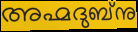
അഹ്മദുബ്നു